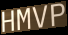
HMVP